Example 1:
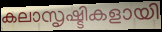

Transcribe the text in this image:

കലാസൃഷ്ടികളായി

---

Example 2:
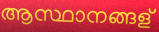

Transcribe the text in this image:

ആസ്ഥാനങ്ങള്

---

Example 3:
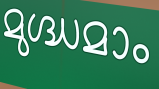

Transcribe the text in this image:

മുഗ്ദ്ധമാം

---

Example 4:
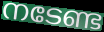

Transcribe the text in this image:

നടേണ്ട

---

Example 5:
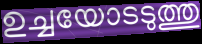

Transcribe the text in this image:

ഉച്ചയോടടുത്തു